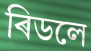
ৰিডলে